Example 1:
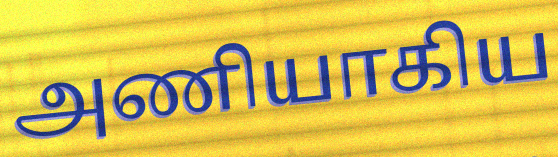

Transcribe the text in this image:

அணியாகிய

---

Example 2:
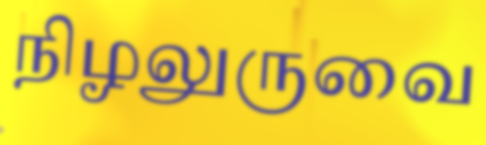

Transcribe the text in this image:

நிழலுருவை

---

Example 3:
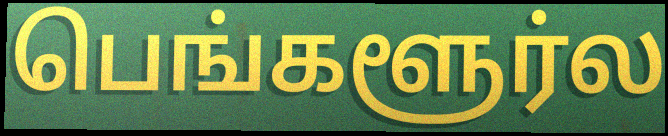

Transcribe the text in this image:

பெங்களூர்ல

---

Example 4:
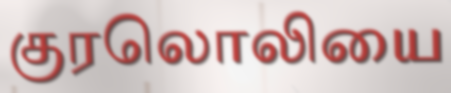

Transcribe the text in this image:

குரலொலியை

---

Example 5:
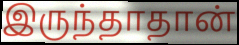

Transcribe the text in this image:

இருந்தாதான்